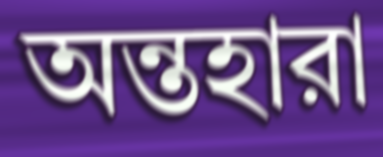
অন্তহারা